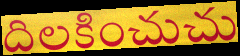
దిలకించుచు